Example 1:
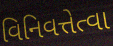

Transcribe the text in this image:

વિનિવત્તેત્વા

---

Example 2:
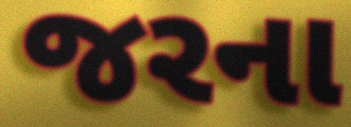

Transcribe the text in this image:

જરના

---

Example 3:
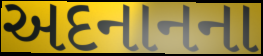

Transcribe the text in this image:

અદનાનના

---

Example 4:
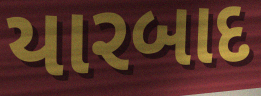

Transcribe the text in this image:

યારબાદ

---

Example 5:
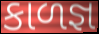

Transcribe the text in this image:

કાળજ્ઞ